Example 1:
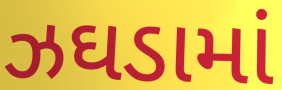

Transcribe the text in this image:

ઝઘડામાં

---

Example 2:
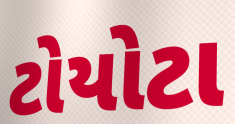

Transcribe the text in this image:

ટોયોટા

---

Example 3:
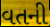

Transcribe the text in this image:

વતની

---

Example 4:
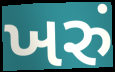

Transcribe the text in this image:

ખરું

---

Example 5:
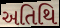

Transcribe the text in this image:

અતિથિ